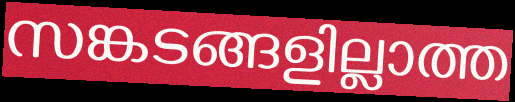
സങ്കടങ്ങളില്ലാത്ത